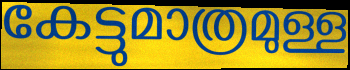
കേട്ടുമാത്രമുള്ള